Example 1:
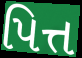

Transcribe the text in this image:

પિત્ત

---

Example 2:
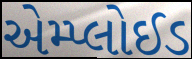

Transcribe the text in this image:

એમ્પ્લોઈડ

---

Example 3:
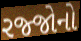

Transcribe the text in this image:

રજ્જોનો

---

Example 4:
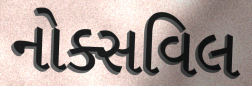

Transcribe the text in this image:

નોક્સવિલ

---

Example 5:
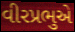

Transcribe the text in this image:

વીરપ્રભુએ